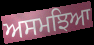
ਅਸਮਝਿਆ